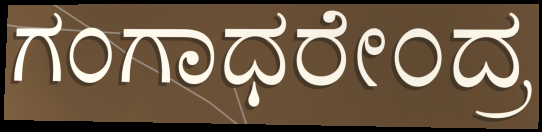
ಗಂಗಾಧರೇಂದ್ರ